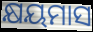
କ୍ଷୟମାସ